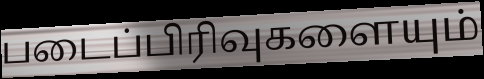
படைப்பிரிவுகளையும்